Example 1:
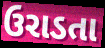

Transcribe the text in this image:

ઉરાડતા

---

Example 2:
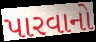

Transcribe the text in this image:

પારવાનો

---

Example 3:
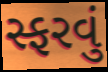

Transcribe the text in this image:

સ્ફરવું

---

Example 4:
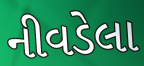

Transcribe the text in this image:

નીવડેલા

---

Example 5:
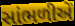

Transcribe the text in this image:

સાંભળીએં